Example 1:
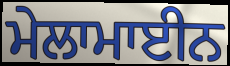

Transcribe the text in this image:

ਮੇਲਾਮਾਈਨ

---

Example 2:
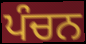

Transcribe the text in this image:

ਪੰਚਨ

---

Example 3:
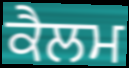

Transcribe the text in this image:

ਕੈਲਮ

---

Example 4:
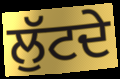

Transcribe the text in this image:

ਲੁੱਟਦੇ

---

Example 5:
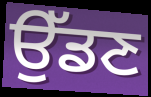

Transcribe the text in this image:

ਉੱਡਣ